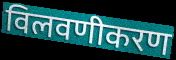
विलवणीकरण